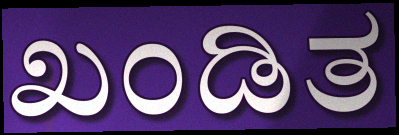
ಖಂಡಿತ